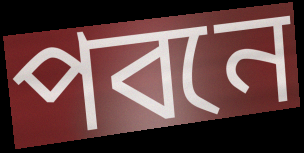
পবনে